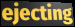
ejecting